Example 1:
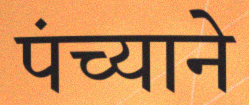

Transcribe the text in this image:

पंच्याने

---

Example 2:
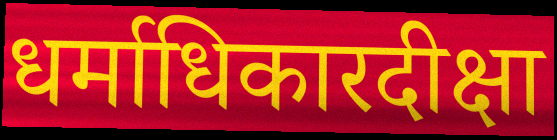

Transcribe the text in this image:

धर्माधिकारदीक्षा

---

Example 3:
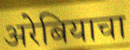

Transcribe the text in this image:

अरेबियाचा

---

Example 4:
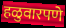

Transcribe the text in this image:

हळुवारपणे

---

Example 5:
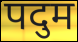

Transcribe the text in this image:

पदुम